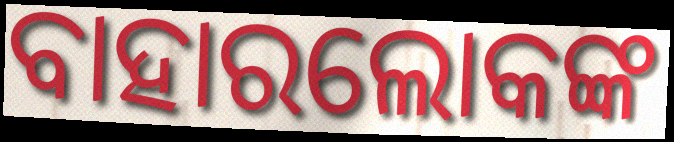
ବାହାରଲୋକଙ୍କ